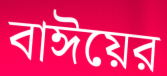
বাঈয়ের